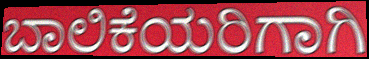
ಬಾಲಿಕೆಯರಿಗಾಗಿ